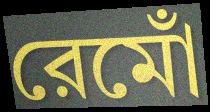
রেমোঁ